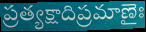
ప్రత్యక్షాదిప్రమాణైః